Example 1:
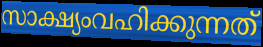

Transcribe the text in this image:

സാക്ഷ്യംവഹിക്കുന്നത്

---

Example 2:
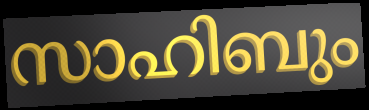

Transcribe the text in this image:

സാഹിബും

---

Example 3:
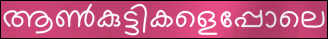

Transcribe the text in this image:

ആൺകുട്ടികളെപ്പോലെ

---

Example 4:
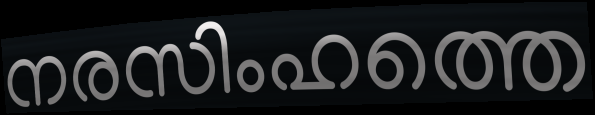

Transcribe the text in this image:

നരസിംഹത്തെ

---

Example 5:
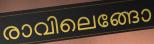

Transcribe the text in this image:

രാവിലെങ്ങോ